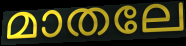
മാതലേ